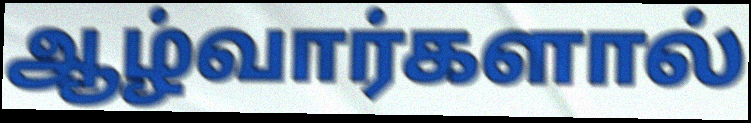
ஆழ்வார்களால்